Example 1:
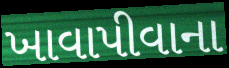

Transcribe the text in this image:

ખાવાપીવાના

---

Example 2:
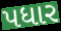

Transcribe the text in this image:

પધાર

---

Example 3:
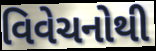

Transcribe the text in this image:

વિવેચનોથી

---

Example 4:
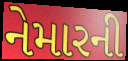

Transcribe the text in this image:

નેમારની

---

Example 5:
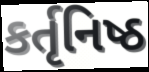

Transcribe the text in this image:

કર્તૃનિષ્ઠ